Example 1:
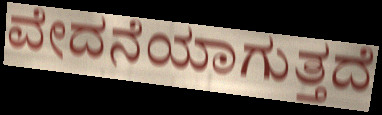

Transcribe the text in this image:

ವೇದನೆಯಾಗುತ್ತದೆ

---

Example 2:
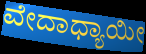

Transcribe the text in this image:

ವೇದಾಧ್ಯಾಯೀ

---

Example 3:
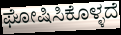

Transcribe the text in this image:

ಘೋಷಿಸಿಕೊಳ್ಳದೆ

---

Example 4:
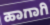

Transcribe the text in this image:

ಹಾಗಾಗಿ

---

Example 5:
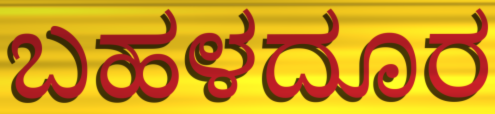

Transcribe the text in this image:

ಬಹಳದೂರ